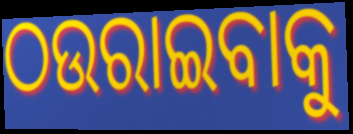
ଠଉରାଇବାକୁ